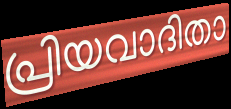
പ്രിയവാദിതാ